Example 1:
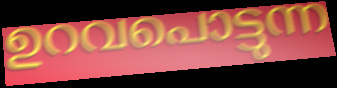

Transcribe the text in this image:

ഉറവപൊട്ടുന്ന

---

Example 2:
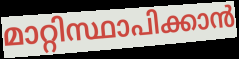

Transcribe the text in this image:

മാറ്റിസ്ഥാപിക്കാൻ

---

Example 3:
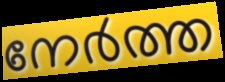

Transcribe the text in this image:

നേർത്ത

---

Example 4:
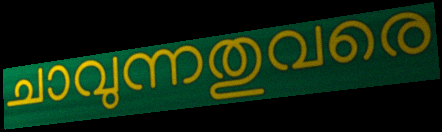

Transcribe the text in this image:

ചാവുന്നതുവരെ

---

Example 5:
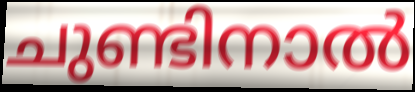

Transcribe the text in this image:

ചുണ്ടിനാൽ